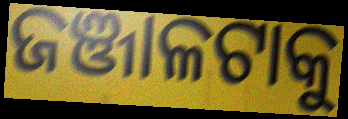
ଜଞ୍ଜାଳଟାକୁ